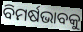
ବିମର୍ଷଭାବକୁ